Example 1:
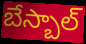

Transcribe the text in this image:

బేస్బాల్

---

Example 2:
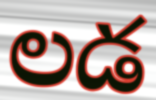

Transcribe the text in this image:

లడ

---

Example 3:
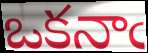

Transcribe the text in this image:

ఒకనాఁ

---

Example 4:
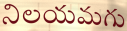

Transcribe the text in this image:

నిలయమగు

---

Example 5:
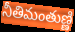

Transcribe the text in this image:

నీతిమంతుణ్ణి